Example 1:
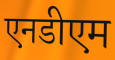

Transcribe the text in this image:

एनडीएम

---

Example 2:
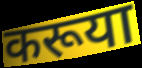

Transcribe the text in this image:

करूया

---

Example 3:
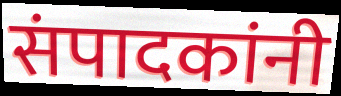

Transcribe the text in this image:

संपादकांनी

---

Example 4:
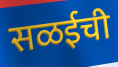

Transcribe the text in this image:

सळईची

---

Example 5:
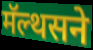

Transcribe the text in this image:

मॅल्थसने